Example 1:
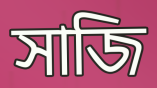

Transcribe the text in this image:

সাজি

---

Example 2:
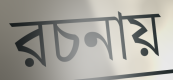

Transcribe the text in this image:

রচনায়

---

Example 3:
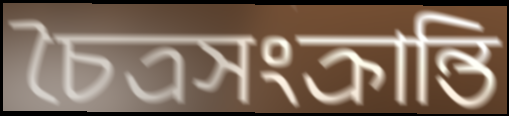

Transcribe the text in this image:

চৈত্রসংক্রান্তি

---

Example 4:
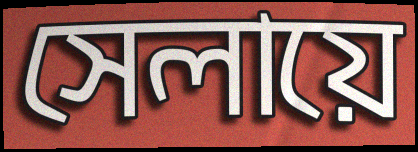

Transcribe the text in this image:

সেলায়ে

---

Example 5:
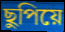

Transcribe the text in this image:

ছুপিয়ে